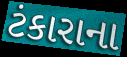
ટંકારાના